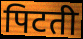
पिटती